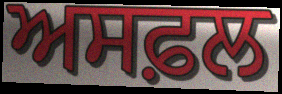
ਅਸਫ਼ਲ